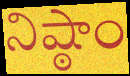
నిష్ఠాం